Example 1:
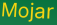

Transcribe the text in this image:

Mojar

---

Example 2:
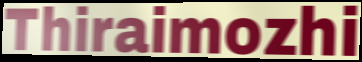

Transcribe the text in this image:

Thiraimozhi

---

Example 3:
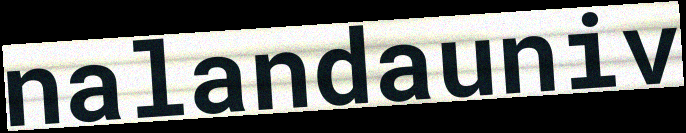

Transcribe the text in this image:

nalandauniv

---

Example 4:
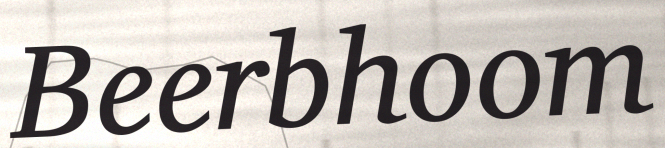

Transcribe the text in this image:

Beerbhoom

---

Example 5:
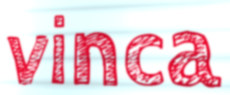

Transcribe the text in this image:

vinca